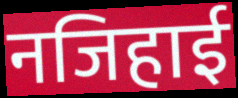
नजिहाई